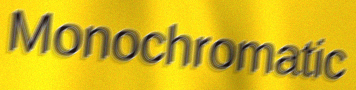
Monochromatic